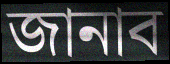
জানাব